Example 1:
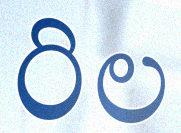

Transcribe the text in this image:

రిల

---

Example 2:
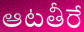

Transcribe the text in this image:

ఆటతీరే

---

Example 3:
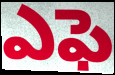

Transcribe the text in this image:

ఎఫె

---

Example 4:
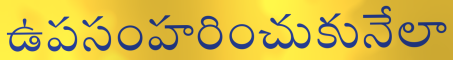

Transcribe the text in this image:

ఉపసంహరించుకునేలా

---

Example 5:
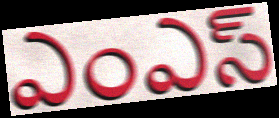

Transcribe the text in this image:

ఎంఎస్